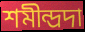
শমীন্দ্রদা